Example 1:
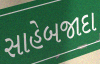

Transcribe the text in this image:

સાહેબજાદા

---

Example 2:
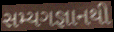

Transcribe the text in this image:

સમ્યગજ્ઞાનથી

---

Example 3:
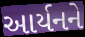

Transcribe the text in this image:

આર્યનને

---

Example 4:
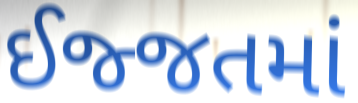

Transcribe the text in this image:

ઈજ્જતમાં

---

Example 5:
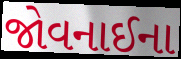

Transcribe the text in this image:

જોવનાઈના